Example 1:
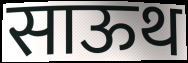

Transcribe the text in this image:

साऊथ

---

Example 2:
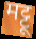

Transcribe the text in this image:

मट्टू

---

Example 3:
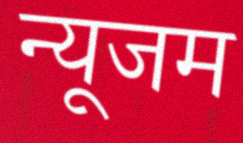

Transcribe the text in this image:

न्यूजम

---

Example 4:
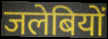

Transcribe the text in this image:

जलेबियों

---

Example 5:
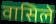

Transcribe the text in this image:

वासिले